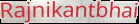
Rajnikantbhai